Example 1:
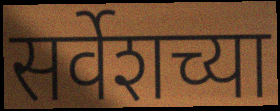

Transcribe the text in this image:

सर्वेशच्या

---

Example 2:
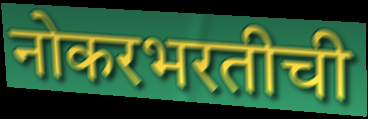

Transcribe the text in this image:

नोकरभरतीची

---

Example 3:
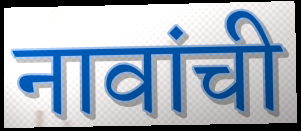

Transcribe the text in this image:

नावांची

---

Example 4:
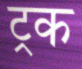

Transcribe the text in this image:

ट्रक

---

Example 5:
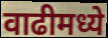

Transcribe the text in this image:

वाढीमध्ये